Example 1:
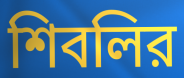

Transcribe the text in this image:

শিবলির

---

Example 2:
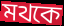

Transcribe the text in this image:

মথকে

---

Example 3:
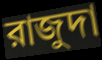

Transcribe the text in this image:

রাজুদা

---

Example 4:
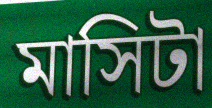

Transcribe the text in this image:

মাসিটা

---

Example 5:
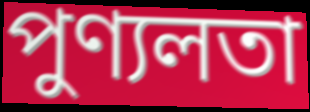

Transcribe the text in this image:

পুণ্যলতা